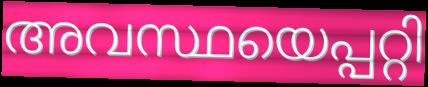
അവസ്ഥയെപ്പറ്റി